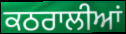
ਕਠਰਾਲੀਆਂ